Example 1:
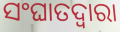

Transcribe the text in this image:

ସଂଘାତଦ୍ୱାରା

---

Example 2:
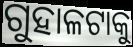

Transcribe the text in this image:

ଗୁହାଳଟାକୁ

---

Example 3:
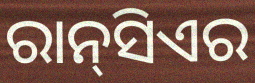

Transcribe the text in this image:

ରାନ୍‌ସିଏର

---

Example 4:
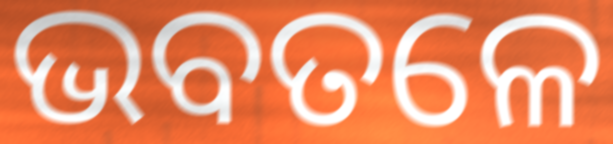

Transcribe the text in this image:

ଭବତଳେ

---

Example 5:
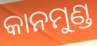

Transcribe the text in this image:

କାନମୁଣ୍ଡ